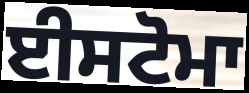
ਈਸਟੋਮਾ